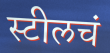
स्टीलचं